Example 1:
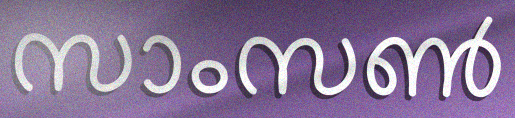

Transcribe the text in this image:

സാംസൺ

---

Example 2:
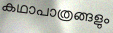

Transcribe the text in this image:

കഥാപാത്രങ്ങളും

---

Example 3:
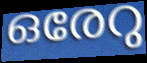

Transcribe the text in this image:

ഒരേറു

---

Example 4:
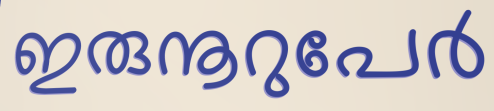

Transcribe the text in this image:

ഇരുനൂറുപേർ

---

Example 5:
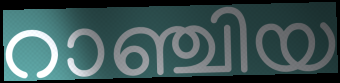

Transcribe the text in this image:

റാഞ്ചിയ